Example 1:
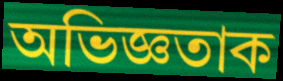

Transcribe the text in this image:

অভিজ্ঞতাক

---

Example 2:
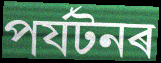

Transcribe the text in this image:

পৰ্যটনৰ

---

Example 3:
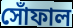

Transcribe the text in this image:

সোঁফাল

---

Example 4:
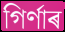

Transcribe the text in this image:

গিৰ্ণাৰ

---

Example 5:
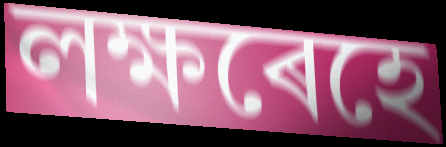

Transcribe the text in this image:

লক্ষৰেহে